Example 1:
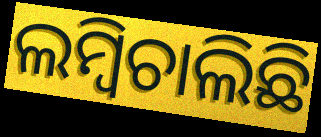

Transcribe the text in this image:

ଲମ୍ବିଚାଲିଛି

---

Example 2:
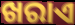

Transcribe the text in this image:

ଖରାଏ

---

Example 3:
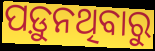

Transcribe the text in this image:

ପଡ଼ୁନଥିବାରୁ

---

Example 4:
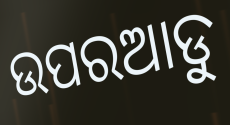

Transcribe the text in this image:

ଉପରଆଡୁ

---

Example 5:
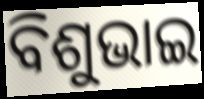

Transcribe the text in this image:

ବିଶୁଭାଇ